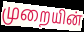
முறையின்